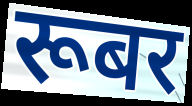
रूबर